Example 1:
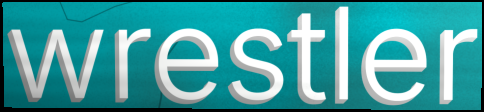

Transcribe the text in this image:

wrestler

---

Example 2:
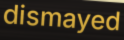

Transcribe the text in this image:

dismayed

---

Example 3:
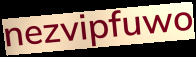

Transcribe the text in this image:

nezvipfuwo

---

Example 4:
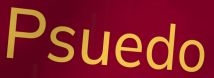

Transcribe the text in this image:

Psuedo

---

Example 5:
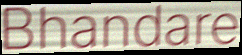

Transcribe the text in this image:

Bhandare